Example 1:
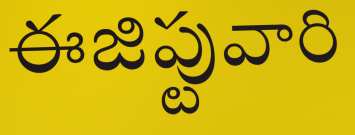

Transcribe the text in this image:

ఈజిప్టువారి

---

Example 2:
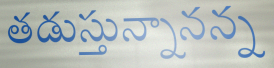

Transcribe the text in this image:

తడుస్తున్నానన్న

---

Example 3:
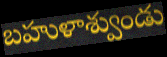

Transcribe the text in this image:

బహుళాశ్వుండు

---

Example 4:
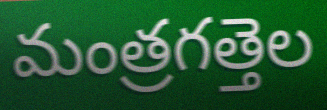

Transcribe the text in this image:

మంత్రగత్తెల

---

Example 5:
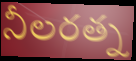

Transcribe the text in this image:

నీలరత్న